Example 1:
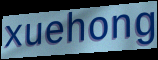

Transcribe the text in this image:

xuehong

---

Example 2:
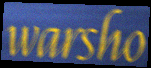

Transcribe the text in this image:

warsho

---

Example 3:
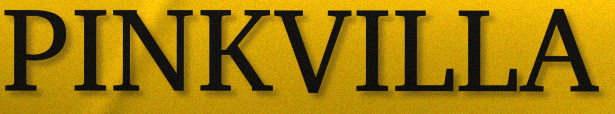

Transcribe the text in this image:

PINKVILLA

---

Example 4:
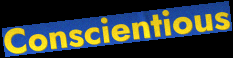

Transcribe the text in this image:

Conscientious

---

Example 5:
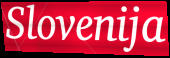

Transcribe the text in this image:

Slovenija